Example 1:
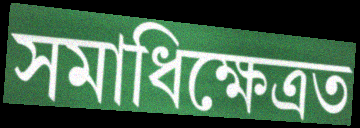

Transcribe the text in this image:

সমাধিক্ষেত্ৰত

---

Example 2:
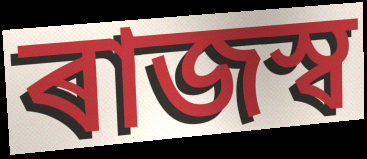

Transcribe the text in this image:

ৰাজস্ব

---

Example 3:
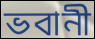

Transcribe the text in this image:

ভবানী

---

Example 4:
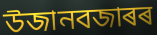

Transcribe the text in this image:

উজানবজাৰৰ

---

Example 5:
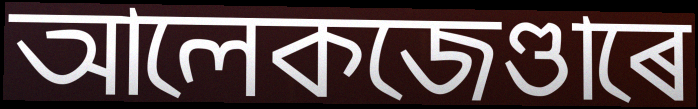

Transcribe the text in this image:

আলেকজেণ্ডাৰে